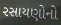
રસાયણોનો